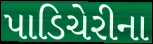
પાડિચેરીના